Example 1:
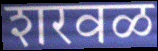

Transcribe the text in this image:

शरवळ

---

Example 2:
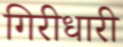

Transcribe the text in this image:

गिरीधारी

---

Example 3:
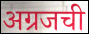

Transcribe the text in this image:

अग्रजची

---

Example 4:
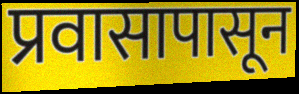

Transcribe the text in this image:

प्रवासापासून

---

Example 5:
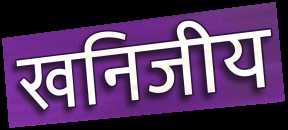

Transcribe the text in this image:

खनिजीय